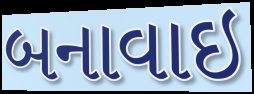
બનાવાઇ